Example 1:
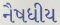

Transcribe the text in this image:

નૈષધીય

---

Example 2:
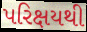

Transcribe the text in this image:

પરિક્ષયથી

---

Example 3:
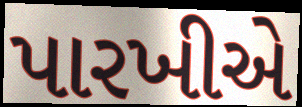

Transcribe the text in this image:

પારખીએ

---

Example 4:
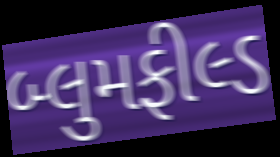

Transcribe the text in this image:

બ્લુમફીલ્ડ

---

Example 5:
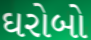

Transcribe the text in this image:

ઘરોબો